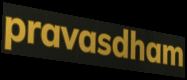
pravasdham